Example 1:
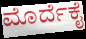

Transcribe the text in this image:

ಮೊರ್ದೆಕೈ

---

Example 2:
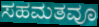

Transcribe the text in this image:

ಸಹಮತವೂ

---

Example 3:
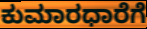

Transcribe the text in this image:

ಕುಮಾರಧಾರೆಗೆ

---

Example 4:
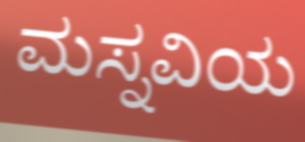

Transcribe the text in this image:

ಮಸ್ನವಿಯ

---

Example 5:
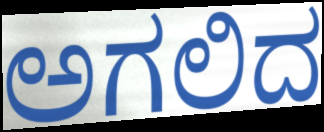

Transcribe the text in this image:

ಅಗಲಿದ